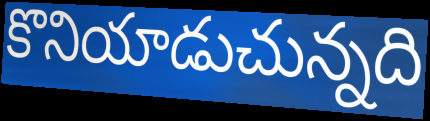
కొనియాడుచున్నది